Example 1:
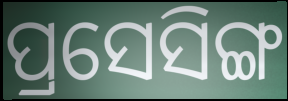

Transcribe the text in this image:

ପ୍ରସେସିଙ୍ଗ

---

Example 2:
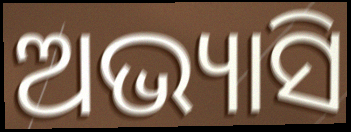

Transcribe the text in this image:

ଅଭ୍ୟାସି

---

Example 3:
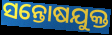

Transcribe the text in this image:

ସନ୍ତୋଷଯୁକ୍ତ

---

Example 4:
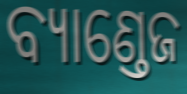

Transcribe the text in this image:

ବ୍ୟାଣ୍ଡେଜ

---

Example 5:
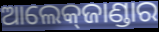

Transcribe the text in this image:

ଆଲେକ୍‌ଜାଣ୍ଡାର